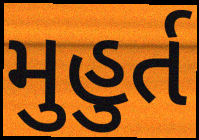
મુહુર્ત